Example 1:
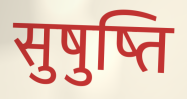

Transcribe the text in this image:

सुषुष्ति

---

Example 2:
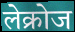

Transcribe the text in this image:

लेक्रोज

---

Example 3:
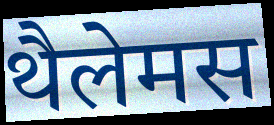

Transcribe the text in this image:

थैलेमस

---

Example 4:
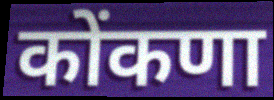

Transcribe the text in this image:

कोंकणा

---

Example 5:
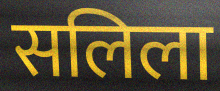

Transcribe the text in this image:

सलिला